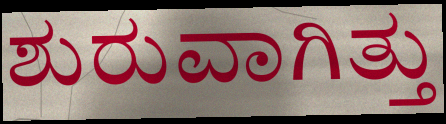
ಶುರುವಾಗಿತ್ತು